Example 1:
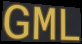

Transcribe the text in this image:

GML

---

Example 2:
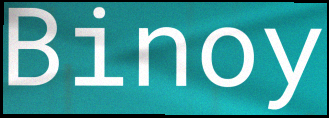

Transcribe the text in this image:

Binoy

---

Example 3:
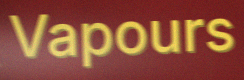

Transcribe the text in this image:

Vapours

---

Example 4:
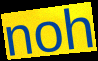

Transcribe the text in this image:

noh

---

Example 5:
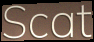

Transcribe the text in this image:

Scat